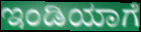
ಇಂಡಿಯಾಗೆ